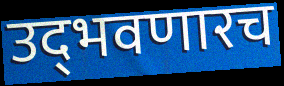
उद्भवणारच